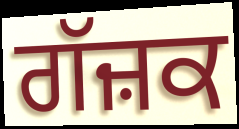
ਗੱਜ਼ਕ